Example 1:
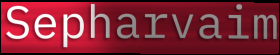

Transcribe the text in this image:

Sepharvaim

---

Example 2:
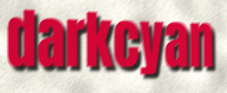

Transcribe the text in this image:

darkcyan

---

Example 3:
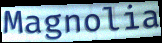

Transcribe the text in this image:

Magnolia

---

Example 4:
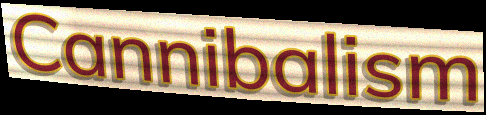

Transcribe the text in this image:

Cannibalism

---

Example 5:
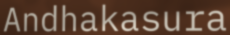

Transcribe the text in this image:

Andhakasura